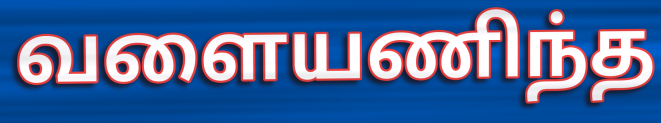
வளையணிந்த